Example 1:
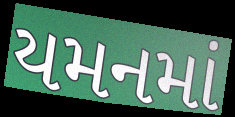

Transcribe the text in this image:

યમનમાં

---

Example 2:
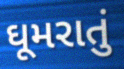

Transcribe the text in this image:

ઘૂમરાતું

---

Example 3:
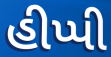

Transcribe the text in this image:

હીપ્પી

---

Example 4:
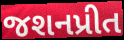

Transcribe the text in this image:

જશનપ્રીત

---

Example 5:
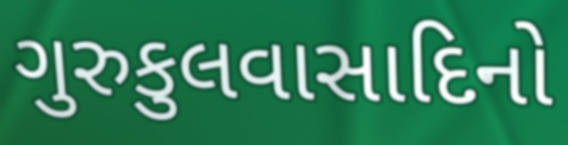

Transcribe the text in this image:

ગુરુકુલવાસાદિનો